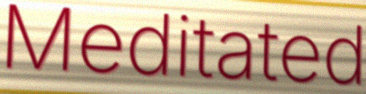
Meditated